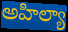
అహిల్యా